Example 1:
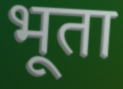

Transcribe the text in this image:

भूता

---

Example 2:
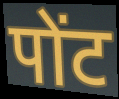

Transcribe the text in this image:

पोंट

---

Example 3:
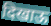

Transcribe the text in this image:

दिखाऊ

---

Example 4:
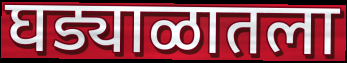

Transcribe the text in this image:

घड्याळातला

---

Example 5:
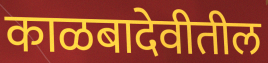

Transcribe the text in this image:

काळबादेवीतील